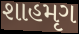
શાહમૃગ